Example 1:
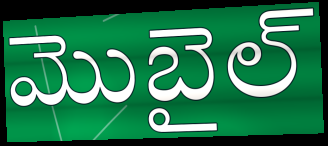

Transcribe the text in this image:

మొబైల్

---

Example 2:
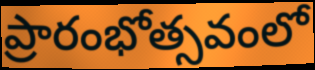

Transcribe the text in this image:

ప్రారంభోత్సవంలో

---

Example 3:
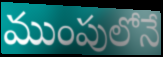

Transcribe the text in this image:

ముంపులోనే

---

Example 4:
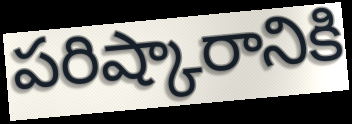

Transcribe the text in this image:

పరిష్కారానికి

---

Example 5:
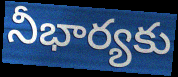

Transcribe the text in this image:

నీభార్యకు